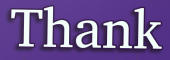
Thank